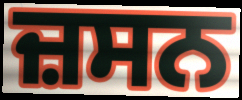
ਜ਼ਸਨ